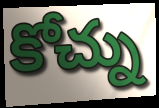
కోచ్ను